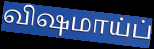
விஷமாய்ப்